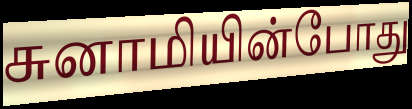
சுனாமியின்போது